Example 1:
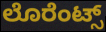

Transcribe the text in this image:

ಲೊರೆಂಟ್ಸ್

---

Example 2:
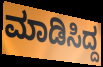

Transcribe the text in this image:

ಮಾಡಿಸಿದ್ದ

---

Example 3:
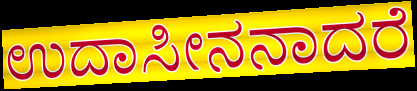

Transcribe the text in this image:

ಉದಾಸೀನನಾದರೆ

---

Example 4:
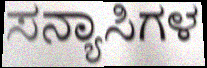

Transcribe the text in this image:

ಸನ್ಯಾಸಿಗಳ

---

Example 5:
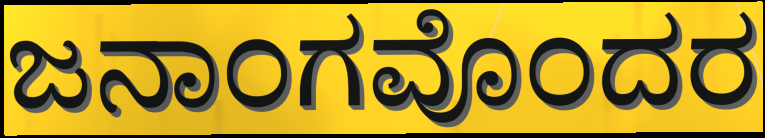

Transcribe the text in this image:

ಜನಾಂಗವೊಂದರ